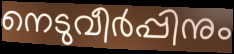
നെടുവീർപ്പിനും